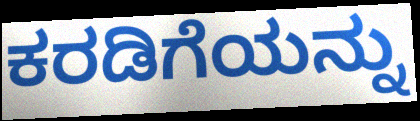
ಕರಡಿಗೆಯನ್ನು